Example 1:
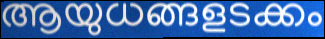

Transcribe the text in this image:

ആയുധങ്ങളടക്കം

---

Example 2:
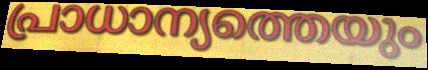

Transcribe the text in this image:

പ്രാധാന്യത്തെയും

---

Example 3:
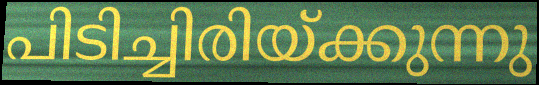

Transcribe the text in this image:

പിടിച്ചിരിയ്ക്കുന്നു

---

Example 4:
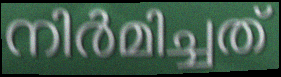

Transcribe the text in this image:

നിർമിച്ചത്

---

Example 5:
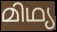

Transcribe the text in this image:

മിഥ്യ